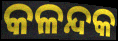
କଳନ୍ଦକ